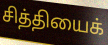
சித்தியைக்